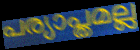
പര്യാപ്തമല്ല